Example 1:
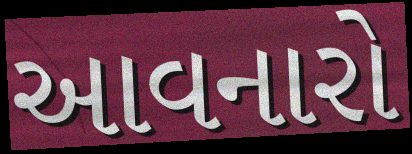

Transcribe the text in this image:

આવનારો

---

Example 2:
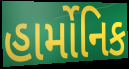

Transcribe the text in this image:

હાર્મોનિક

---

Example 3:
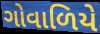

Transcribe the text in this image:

ગોવાળિયે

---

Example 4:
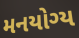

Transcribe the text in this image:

મનયોગ્ય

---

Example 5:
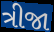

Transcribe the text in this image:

ત્રીજા